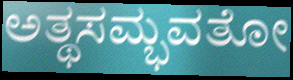
ಅತ್ಥಸಮ್ಭವತೋ